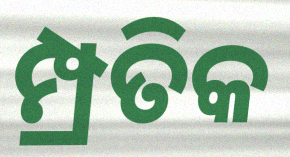
ମ୍ପ୍ରତିକ